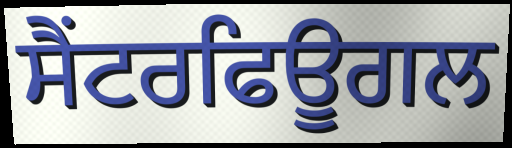
ਸੈਂਟਰਫਿਊਗਲ